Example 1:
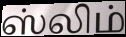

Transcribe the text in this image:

ஸ்லிம்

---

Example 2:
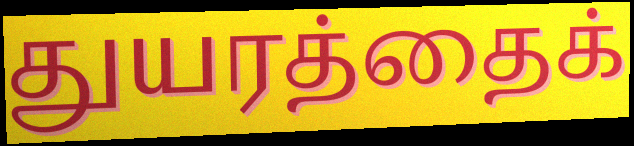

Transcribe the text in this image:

துயரத்தைக்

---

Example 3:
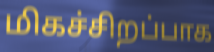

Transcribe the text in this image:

மிகச்சிறப்பாக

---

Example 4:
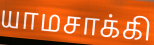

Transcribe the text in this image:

யாமசாக்கி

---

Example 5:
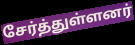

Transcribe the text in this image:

சேர்த்துள்ளனர்